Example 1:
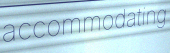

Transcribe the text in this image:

accommodating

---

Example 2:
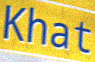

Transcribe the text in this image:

Khat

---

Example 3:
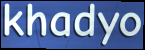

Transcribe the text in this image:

khadyo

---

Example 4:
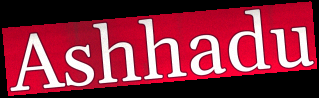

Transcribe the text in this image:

Ashhadu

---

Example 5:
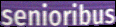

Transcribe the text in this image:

senioribus